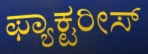
ಫ್ಯಾಕ್ಟರೀಸ್